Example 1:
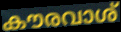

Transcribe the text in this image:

കൗരവാശ്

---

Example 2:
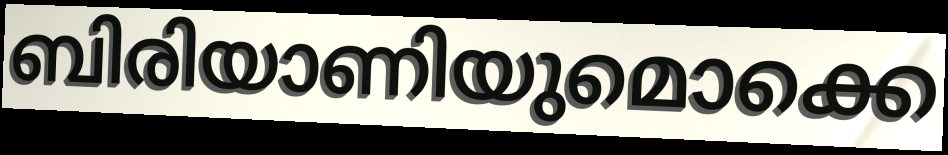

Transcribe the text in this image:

ബിരിയാണിയുമൊക്കെ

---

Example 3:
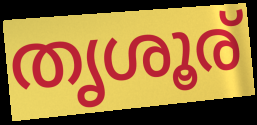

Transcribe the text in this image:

തൃശൂര്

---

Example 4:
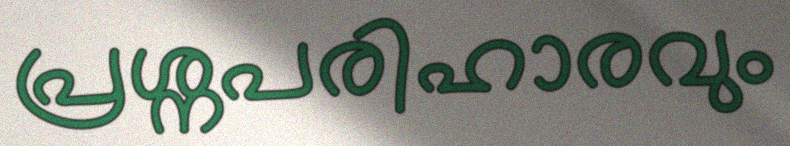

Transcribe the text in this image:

പ്രശ്നപരിഹാരവും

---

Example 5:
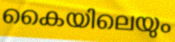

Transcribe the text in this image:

കൈയിലെയും